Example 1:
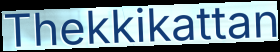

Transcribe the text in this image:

Thekkikattan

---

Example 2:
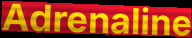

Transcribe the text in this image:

Adrenaline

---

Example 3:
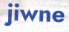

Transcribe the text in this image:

jiwne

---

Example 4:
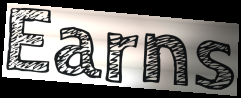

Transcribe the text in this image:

Earns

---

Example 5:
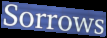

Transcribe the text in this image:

Sorrows